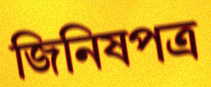
জিনিষপত্র